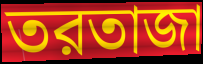
তরতাজা